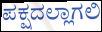
ಪಕ್ಷದಲ್ಲಾಗಲಿ